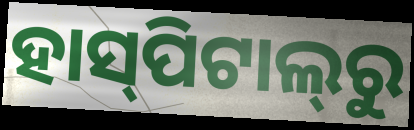
ହାସ୍‍ପିଟାଲ୍‍ରୁ